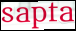
sapta